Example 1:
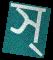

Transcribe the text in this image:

স্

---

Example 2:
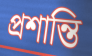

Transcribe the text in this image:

প্ৰশান্তি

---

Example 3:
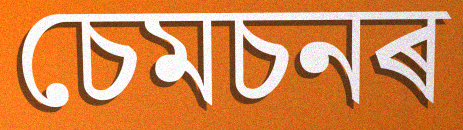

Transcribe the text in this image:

চেমচনৰ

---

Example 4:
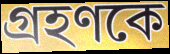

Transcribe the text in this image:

গ্ৰহণকে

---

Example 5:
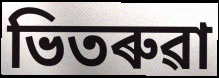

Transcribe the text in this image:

ভিতৰুৱা